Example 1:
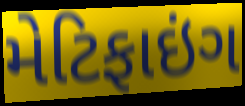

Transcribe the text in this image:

મેટિફાઇંગ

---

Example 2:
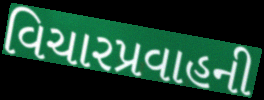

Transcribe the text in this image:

વિચારપ્રવાહની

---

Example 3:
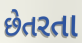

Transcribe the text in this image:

છેતરતા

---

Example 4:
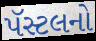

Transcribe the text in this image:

પૅસ્ટલનો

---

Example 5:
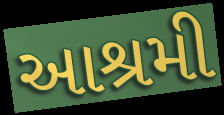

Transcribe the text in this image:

આશ્રમી